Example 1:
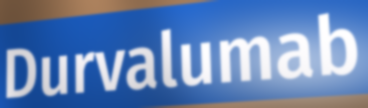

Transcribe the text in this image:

Durvalumab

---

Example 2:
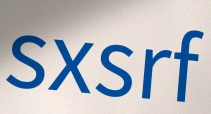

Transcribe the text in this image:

sxsrf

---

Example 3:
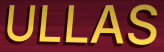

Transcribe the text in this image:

ULLAS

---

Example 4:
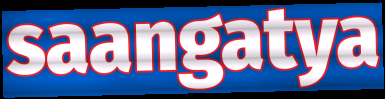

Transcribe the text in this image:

saangatya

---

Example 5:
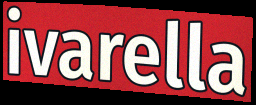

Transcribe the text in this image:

ivarella